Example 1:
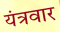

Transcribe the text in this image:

यंत्रवार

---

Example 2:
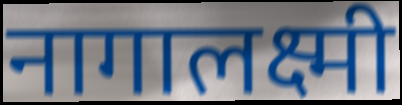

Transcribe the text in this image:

नागालक्ष्मी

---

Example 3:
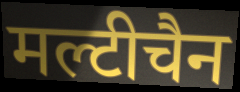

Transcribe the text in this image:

मल्टीचैन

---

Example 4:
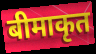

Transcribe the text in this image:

बीमाकृत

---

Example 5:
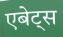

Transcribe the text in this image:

एबेट्स